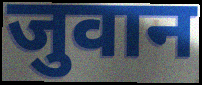
जुवान